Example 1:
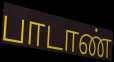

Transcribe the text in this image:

பாடாண்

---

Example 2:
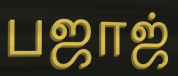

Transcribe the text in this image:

பஜாஜ்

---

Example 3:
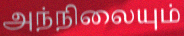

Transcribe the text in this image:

அந்நிலையும்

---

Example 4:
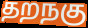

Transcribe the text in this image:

தறநகு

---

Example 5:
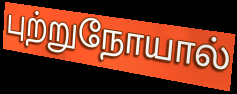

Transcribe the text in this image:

புற்றுநோயால்